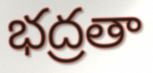
భద్రతా